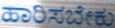
ಹಾರಿಸಬೇಕು